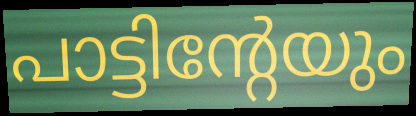
പാട്ടിന്റേയും